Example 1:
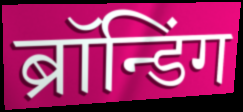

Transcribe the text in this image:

ब्रॉन्डिंग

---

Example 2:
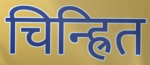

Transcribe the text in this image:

चिन्ह्रित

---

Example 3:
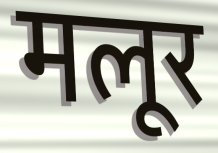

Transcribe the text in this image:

मलूर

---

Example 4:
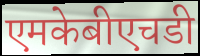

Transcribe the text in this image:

एमकेबीएचडी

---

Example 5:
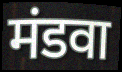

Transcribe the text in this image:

मंडवा